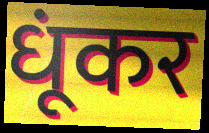
धूंकर